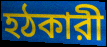
হঠকারী